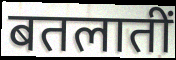
बतलातीं